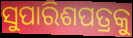
ସୁପାରିଶପତ୍ରକୁ